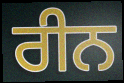
ਰੀਨ